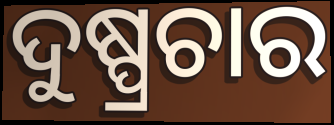
ଦୁଷ୍ପ୍ରଚାର